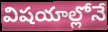
విషయాల్లోనే